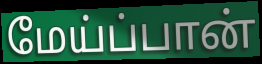
மேய்ப்பான்